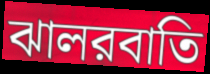
ঝালরবাতি